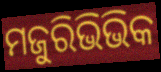
ମଜୁରିଭିଭିକ